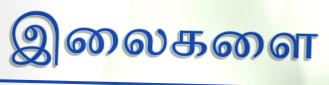
இலைகளை